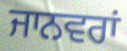
ਜਾਨਵਰਾਂ